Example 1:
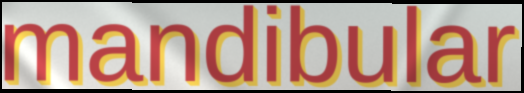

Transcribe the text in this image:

mandibular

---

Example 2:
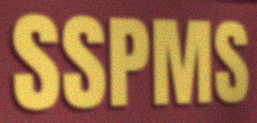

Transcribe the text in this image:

SSPMS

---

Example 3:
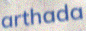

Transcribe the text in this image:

arthada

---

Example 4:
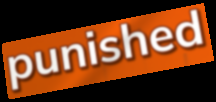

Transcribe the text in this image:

punished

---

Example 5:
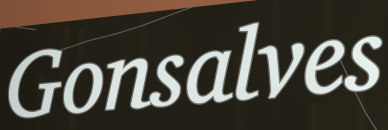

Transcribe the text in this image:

Gonsalves